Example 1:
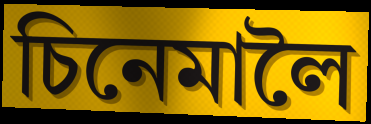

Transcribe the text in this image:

চিনেমালৈ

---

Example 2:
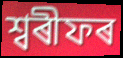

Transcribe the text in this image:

শ্বৰীফৰ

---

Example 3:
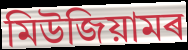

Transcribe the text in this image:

মিউজিয়ামৰ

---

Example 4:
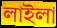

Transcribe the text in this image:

লাইলা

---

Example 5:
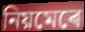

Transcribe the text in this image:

নিয়মেৰে